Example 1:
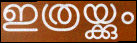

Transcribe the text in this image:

ഇത്രയ്ക്കും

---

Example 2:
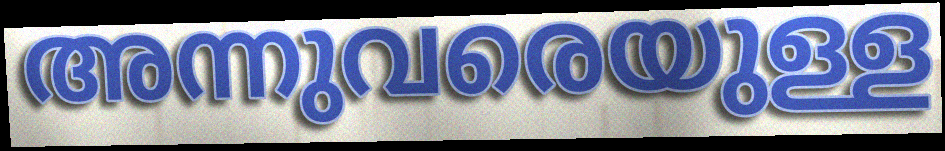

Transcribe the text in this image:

അന്നുവരെയുള്ള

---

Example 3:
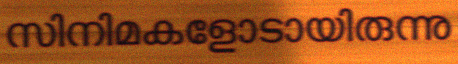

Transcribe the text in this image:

സിനിമകളോടായിരുന്നു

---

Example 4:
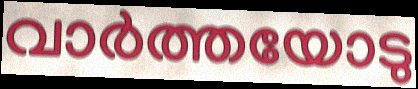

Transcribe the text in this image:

വാർത്തയോടു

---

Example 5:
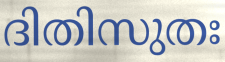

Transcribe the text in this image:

ദിതിസുതഃ